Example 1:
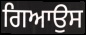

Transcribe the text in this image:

ਗਿਆਉਸ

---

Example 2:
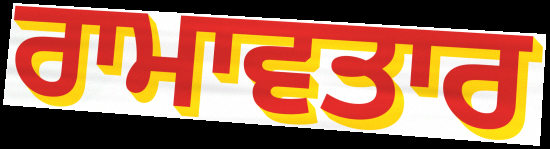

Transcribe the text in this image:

ਰਾਮਾਵਤਾਰ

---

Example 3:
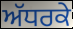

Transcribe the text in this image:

ਅੱਧਰਕੇ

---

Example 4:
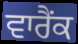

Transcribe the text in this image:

ਵਾਰੈਂਕ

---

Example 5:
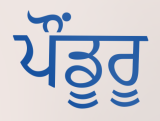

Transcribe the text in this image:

ਪੌਂਡੂਰੂ